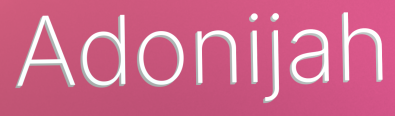
Adonijah